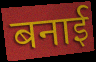
बनाई